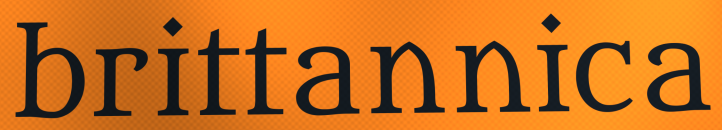
brittannica